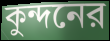
কুন্দনের